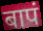
बापं